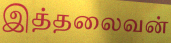
இத்தலைவன்